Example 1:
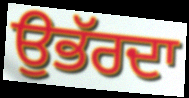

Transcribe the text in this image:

ਉਭੱਰਦਾ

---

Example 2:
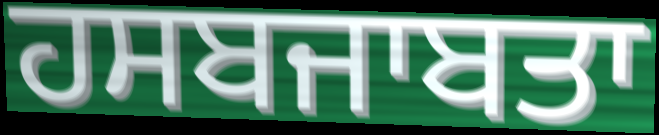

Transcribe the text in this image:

ਹਸਬਜਾਬਤਾ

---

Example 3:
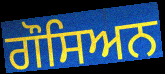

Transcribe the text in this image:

ਗੌਸਿਅਨ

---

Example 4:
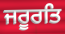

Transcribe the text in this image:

ਜਰੂਰਤਿ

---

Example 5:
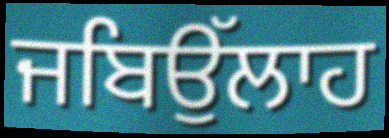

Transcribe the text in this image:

ਜਬਿਉੱਲਾਹ